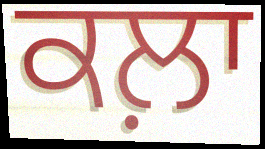
ਕਲ਼ਾ